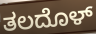
ತಲದೊಳ್